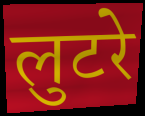
लुटरे